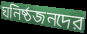
ঘনিষ্ঠজনদের